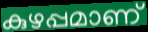
കുഴപ്പമാണ്